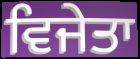
ਵਿਜੇਤਾ